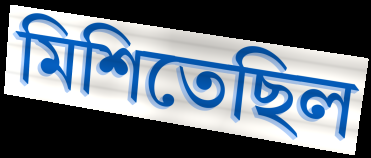
মিশিতেছিল